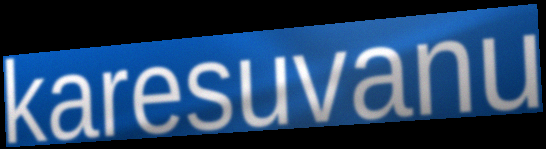
karesuvanu